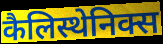
कैलिस्थेनिक्स